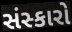
સંસ્કારો